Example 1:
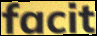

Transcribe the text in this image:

facit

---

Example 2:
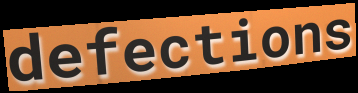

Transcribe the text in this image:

defections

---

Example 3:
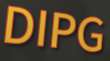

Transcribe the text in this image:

DIPG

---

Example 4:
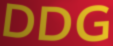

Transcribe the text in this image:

DDG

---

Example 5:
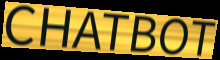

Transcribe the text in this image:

CHATBOT